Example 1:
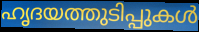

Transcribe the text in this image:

ഹൃദയത്തുടിപ്പുകൾ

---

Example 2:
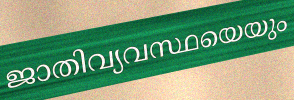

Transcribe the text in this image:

ജാതിവ്യവസ്ഥയെയും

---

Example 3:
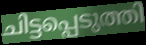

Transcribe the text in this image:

ചിട്ടപ്പെടുത്തി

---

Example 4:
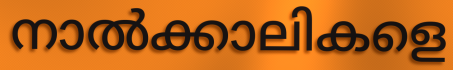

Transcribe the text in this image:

നാൽക്കാലികളെ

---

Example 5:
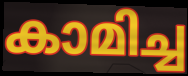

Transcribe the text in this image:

കാമിച്ച